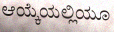
ಆಯ್ಕೆಯಲ್ಲಿಯೂ